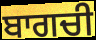
ਬਾਗਚੀ